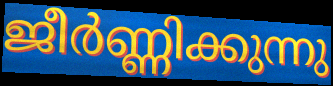
ജീർണ്ണിക്കുന്നു